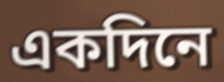
একদিনে